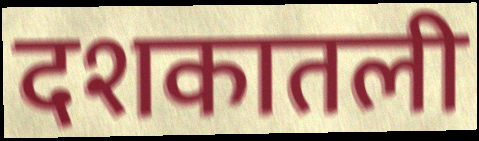
दशकातली